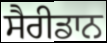
ਸੈਰੀਡਾਨ